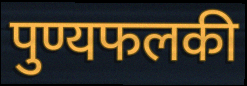
पुण्यफलकी